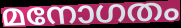
മനോഗതം